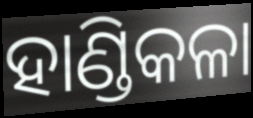
ହାଣ୍ଡିକଳା